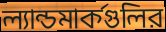
ল্যান্ডমার্কগুলির